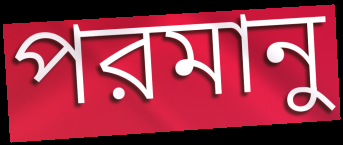
পরমানু